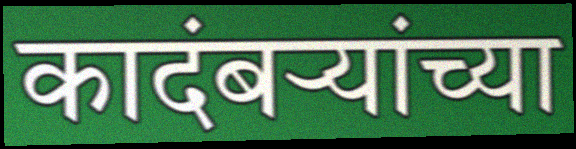
कादंबर्‍यांच्या